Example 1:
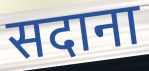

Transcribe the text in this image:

सदाना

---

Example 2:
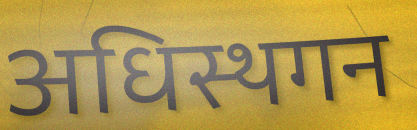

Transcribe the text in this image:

अधिस्थगन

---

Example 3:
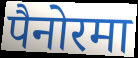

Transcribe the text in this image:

पैनोरमा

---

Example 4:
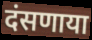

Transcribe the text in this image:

दंसणाया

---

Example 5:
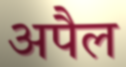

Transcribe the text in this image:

अपैल